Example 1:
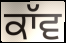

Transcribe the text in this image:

ਕਾੱਵ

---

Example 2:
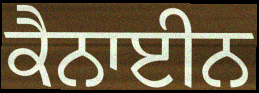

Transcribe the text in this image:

ਕੈਨਾਈਨ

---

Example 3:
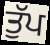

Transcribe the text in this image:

ਤੁੱਪ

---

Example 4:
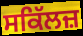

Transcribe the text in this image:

ਸਕਿੱਲਜ਼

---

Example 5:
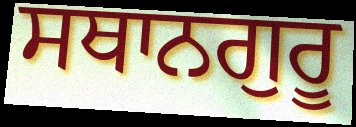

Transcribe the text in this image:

ਸਥਾਨਗੁਰੂ